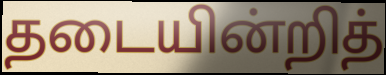
தடையின்றித்